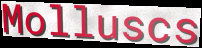
Molluscs